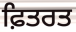
ਫ਼ਿਤਰਤ